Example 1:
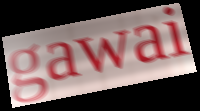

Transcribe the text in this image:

gawai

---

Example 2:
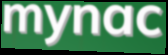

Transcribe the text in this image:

mynac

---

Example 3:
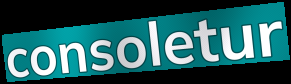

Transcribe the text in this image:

consoletur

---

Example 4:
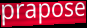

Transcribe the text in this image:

prapose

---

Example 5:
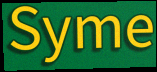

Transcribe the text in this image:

Syme